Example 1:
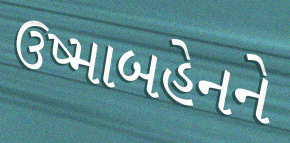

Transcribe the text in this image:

ઉષ્માબહેનને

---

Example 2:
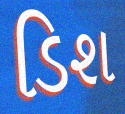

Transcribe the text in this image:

ડિશ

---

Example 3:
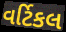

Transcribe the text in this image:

વર્ટિકલ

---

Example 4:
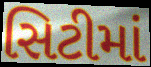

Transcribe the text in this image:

સિટીમાં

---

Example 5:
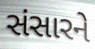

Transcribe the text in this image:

સંસારને